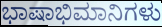
ಭಾಷಾಭಿಮಾನಿಗಳು